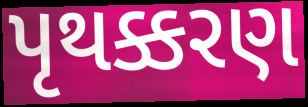
પૃથક્કરણ